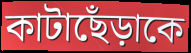
কাটাছেঁড়াকে